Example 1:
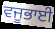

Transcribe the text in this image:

ਵਜੂਭਾਈ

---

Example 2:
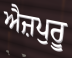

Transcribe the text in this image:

ਐਜ਼ਪੁਰੂ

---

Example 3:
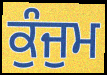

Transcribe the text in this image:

ਕੁੰਜੁਮ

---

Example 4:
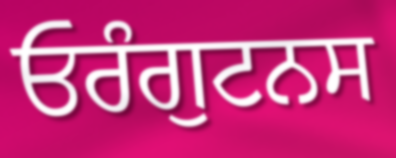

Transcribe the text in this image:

ਓਰੰਗੁਟਨਸ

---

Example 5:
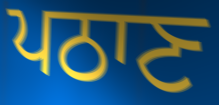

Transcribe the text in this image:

ਪਠਾਣ